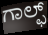
ಗಾಲ್ಫ್